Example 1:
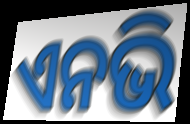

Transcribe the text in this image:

ଏନଭି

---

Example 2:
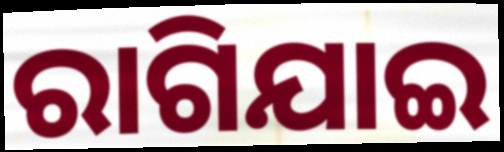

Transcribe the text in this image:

ରାଗିଯାଇ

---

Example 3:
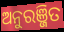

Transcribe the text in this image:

ଅନୁରଞ୍ଜିତ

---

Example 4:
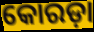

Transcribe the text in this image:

କୋରଡ଼ା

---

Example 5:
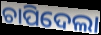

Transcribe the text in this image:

ଚାପିଦେଲା